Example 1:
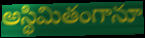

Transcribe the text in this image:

అస్థిమితంగానూ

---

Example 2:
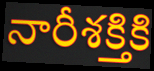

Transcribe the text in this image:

నారీశక్తికి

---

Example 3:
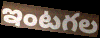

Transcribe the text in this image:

ఇంటగల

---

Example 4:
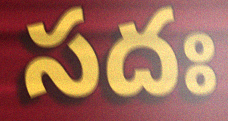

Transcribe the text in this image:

సదః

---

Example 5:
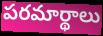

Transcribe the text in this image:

పరమార్థాలు